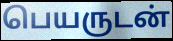
பெயருடன்